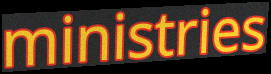
ministries